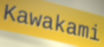
Kawakami